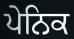
ਪੇਨਿਕ